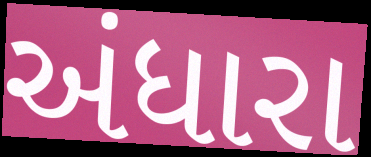
અંધારા